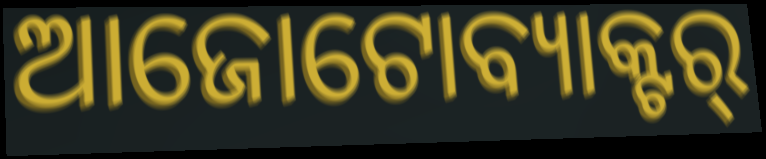
ଆଜୋଟୋବ୍ଯାକ୍ଟର୍